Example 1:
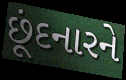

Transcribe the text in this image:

છૂંદનારને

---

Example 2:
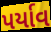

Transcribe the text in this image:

પર્યાવ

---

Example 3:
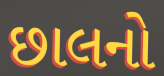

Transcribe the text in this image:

છાલનો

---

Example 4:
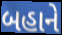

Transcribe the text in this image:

બહાને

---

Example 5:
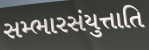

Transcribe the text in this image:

સમ્ભારસંયુત્તાતિ